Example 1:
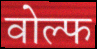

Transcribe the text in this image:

वोल्फ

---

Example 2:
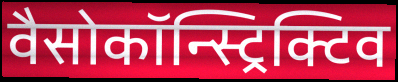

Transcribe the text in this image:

वैसोकॉन्स्ट्रिक्टिव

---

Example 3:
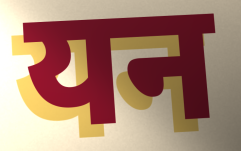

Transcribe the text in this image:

यन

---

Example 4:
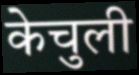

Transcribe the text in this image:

केचुली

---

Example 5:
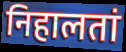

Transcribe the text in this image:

निहालतां